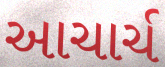
આચાર્ચ